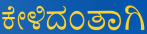
ಕೇಳಿದಂತಾಗಿ